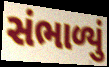
સંભાળ્યું